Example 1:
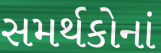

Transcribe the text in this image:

સમર્થકોનાં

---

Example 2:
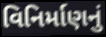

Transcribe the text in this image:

વિનિર્માણનું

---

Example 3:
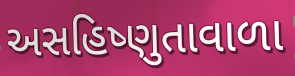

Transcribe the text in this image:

અસહિષ્ણુતાવાળા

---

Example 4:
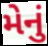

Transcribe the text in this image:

મેનું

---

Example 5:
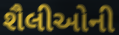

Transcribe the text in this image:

શૈલીઓની